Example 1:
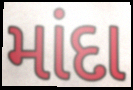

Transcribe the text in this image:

માંદા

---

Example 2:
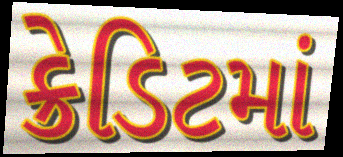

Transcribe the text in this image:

ક્રેડિટમાં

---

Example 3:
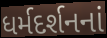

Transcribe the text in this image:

ધર્મદર્શનનાં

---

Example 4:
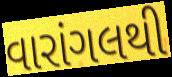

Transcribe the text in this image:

વારાંગલથી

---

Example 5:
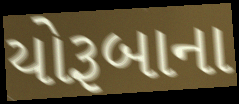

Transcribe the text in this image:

યોરૂબાના